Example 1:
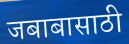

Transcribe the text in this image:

जबाबासाठी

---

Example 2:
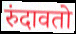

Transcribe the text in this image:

रुंदावतो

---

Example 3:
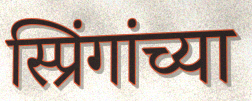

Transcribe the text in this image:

स्प्रिंगांच्या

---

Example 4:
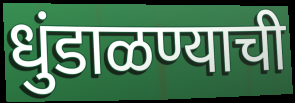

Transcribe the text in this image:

धुंडाळण्याची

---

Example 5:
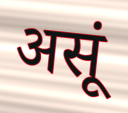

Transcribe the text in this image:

असूं